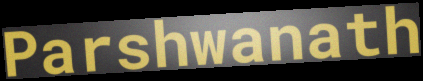
Parshwanath